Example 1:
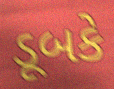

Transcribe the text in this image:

ડૂબકે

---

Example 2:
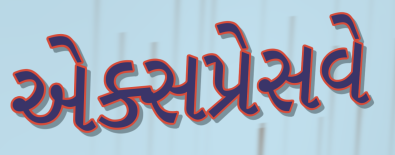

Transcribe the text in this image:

એક્સપ્રેસવે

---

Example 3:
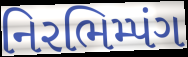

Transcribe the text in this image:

નિરભિમ્પંગ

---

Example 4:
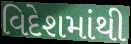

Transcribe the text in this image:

વિદેશમાંથી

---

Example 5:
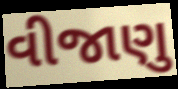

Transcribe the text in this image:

વીજાણુ